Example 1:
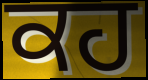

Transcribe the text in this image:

ਕਹ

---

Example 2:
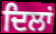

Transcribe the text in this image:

ਦਿਲਾਂ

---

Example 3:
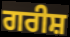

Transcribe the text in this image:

ਗਰੀਸ਼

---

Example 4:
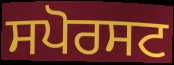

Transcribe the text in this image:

ਸਪੋਰਸਟ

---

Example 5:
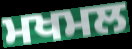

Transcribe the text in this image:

ਮਖਮਲ